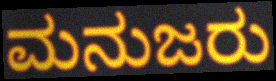
ಮನುಜರು